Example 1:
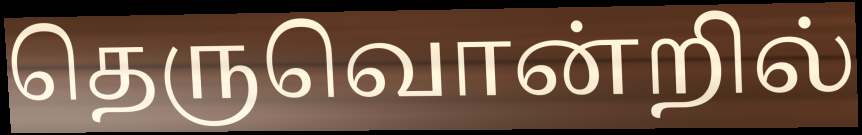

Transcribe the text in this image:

தெருவொன்றில்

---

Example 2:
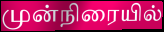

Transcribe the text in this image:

முன்நிரையில்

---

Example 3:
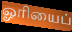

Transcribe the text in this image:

ஓரியைப்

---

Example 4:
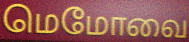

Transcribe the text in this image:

மெமோவை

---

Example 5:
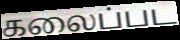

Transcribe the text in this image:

கலைப்பட